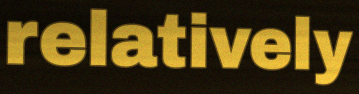
relatively